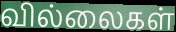
வில்லைகள்